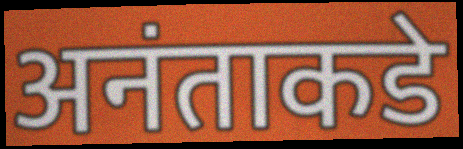
अनंताकडे